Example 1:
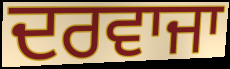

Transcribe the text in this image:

ਦਰਵਾਜਾ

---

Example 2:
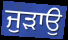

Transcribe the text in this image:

ਜੁੜਾਉ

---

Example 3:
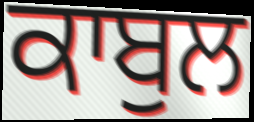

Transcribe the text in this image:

ਕਾਬੁਲ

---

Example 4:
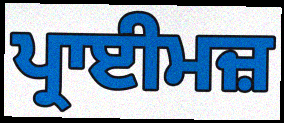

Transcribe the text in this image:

ਪ੍ਰਾਈਮਜ਼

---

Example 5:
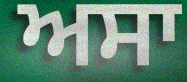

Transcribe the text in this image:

ਅਸਾ